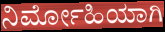
ನಿರ್ಮೋಹಿಯಾಗಿ